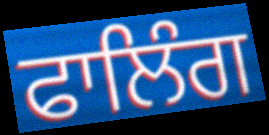
ਫਾਲਿੰਗ